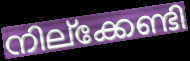
നില്ക്കേണ്ടി